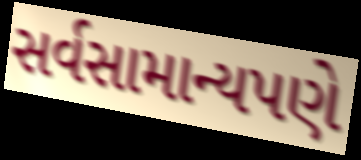
સર્વસામાન્યપણે